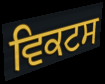
ਵਿਕਟਸ